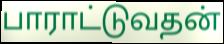
பாராட்டுவதன்